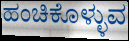
ಹಂಚಿಕೊಳ್ಳುವ